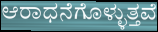
ಆರಾಧನೆಗೊಳ್ಳುತ್ತವೆ